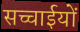
सच्चाईयों